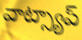
వాట్స్యాప్